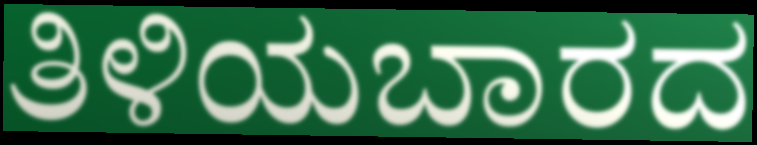
ತಿಳಿಯಬಾರದ